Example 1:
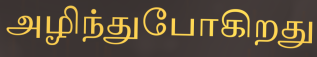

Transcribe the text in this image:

அழிந்துபோகிறது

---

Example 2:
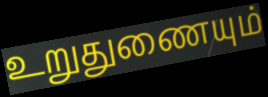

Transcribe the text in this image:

உறுதுணையும்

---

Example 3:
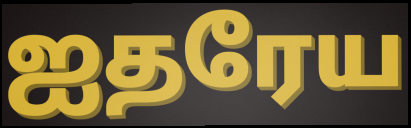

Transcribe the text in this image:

ஐதரேய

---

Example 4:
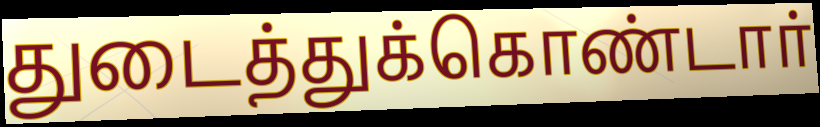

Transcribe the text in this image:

துடைத்துக்கொண்டார்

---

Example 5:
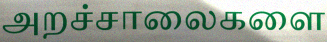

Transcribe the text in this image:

அறச்சாலைகளை